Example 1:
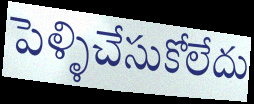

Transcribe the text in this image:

పెళ్ళిచేసుకోలేదు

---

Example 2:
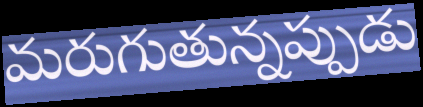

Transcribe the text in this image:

మరుగుతున్నప్పుడు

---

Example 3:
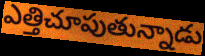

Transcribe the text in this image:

ఎత్తిచూపుతున్నాడు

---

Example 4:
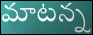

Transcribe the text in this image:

మాటన్న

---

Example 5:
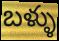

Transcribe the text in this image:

బళ్ళు